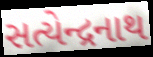
સત્યેન્દ્રનાથ